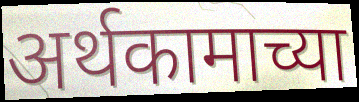
अर्थकामाच्या